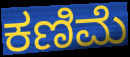
ಕಣಿಮೆ